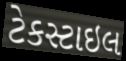
ટેકસ્ટાઇલ